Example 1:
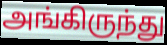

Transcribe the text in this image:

அங்கிருந்து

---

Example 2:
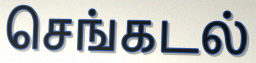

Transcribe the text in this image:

செங்கடல்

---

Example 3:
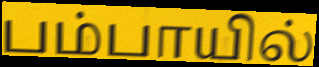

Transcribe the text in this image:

பம்பாயில்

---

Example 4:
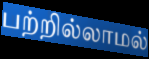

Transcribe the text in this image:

பற்றில்லாமல்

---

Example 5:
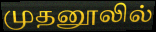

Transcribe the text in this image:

முதனூலில்